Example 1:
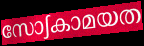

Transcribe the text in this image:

സോഽകാമയത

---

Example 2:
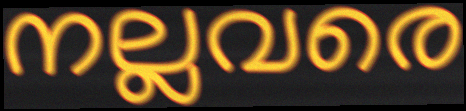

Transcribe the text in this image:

നല്ലവരെ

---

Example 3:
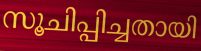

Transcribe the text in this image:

സൂചിപ്പിച്ചതായി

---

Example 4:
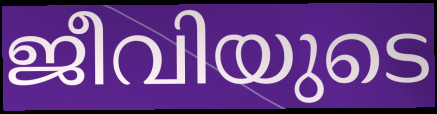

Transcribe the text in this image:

ജീവിയുടെ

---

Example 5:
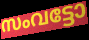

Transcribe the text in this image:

സംവട്ടോ